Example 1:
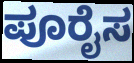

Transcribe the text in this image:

ಪೂರೈಸ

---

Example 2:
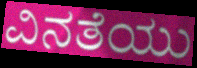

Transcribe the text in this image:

ವಿನತೆಯು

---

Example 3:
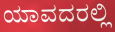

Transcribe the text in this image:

ಯಾವದರಲ್ಲಿ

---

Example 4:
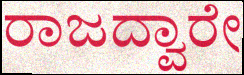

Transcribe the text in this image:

ರಾಜದ್ವಾರೇ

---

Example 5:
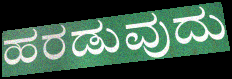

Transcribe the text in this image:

ಹರಡುವುದು